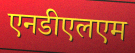
एनडीएलएम